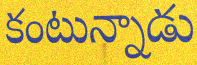
కంటున్నాడు